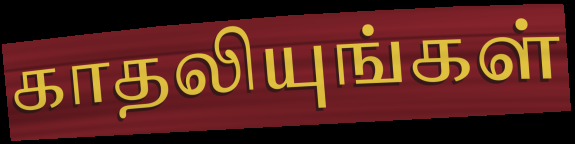
காதலியுங்கள்